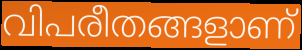
വിപരീതങ്ങളാണ്